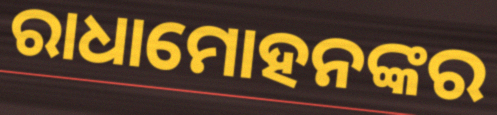
ରାଧାମୋହନଙ୍କର